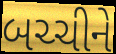
બચ્ચીને